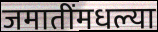
जमातींमधल्या